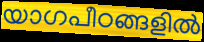
യാഗപീഠങ്ങളിൽ